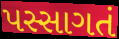
પસ્સાગતં